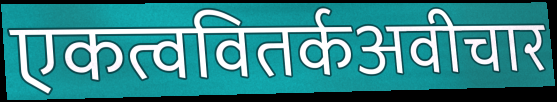
एकत्ववितर्कअवीचार